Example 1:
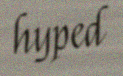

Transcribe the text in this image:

hyped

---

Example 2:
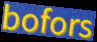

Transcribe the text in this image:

bofors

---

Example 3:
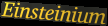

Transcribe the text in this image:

Einsteinium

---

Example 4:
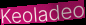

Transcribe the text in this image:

Keoladeo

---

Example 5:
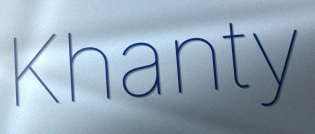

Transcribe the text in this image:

Khanty